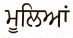
ਮੂਲਿਆਂ